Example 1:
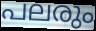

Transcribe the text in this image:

പലരും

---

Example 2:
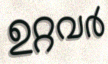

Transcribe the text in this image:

ഉറ്റവർ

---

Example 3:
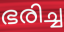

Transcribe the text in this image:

ഭരിച്ച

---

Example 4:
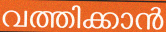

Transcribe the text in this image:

വത്തിക്കാൻ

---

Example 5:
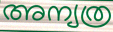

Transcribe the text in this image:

അന്യത്ര